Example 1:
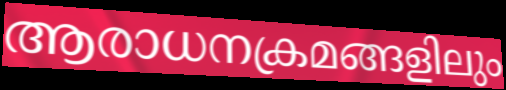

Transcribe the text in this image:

ആരാധനക്രമങ്ങളിലും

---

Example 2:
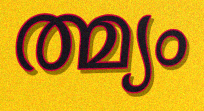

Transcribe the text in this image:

ത്മ്യം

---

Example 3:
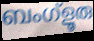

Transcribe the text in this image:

ബംഗ്ളൂരു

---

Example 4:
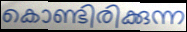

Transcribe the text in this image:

കൊണ്ടിരിക്കുന്ന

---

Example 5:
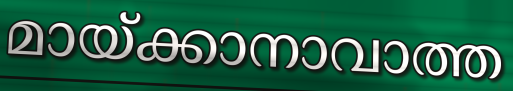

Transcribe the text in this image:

മായ്ക്കാനാവാത്ത